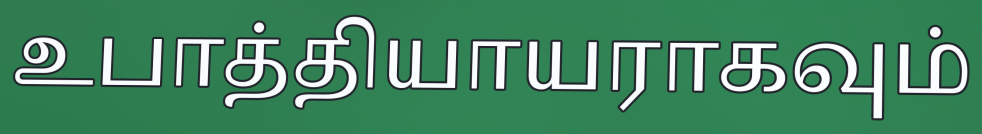
உபாத்தியாயராகவும்